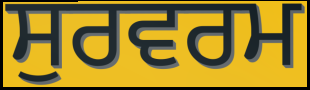
ਸੁਰਵਰਮ